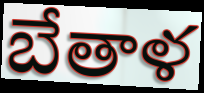
బేతాళ